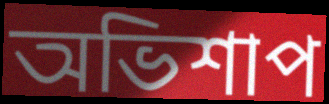
অভিশাপ